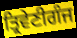
ਤ੍ਰਿਵੇਣੀਗੰਜ